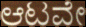
ಆಟವೇ